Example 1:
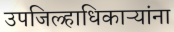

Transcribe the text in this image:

उपजिल्हाधिकाऱ्यांना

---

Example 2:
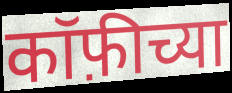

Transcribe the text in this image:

कॉफ़ीच्या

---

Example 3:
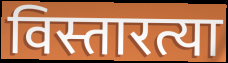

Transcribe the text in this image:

विस्तारत्या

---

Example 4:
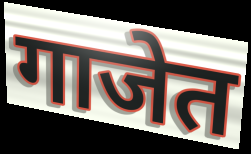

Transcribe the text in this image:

गाजेत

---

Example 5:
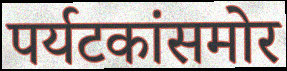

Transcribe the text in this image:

पर्यटकांसमोर